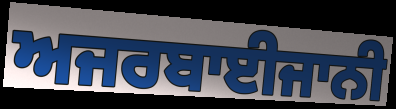
ਅਜਰਬਾਈਜਾਨੀ